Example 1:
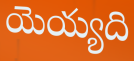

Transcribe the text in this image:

యెయ్యది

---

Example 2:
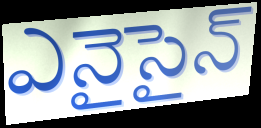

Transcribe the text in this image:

ఎనైసైన్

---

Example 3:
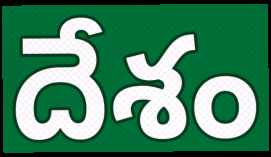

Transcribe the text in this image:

దేశం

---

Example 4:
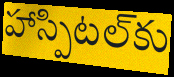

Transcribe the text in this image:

హాస్పిటల్‌కు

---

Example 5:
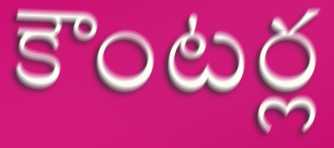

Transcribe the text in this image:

కౌంటర్ల